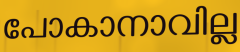
പോകാനാവില്ല